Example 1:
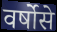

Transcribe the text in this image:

वर्षोसे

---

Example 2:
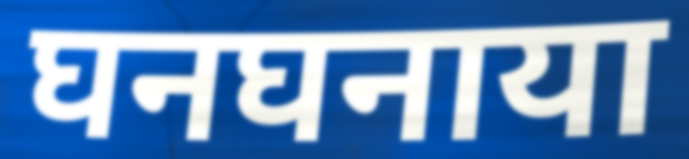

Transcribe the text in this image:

घनघनाया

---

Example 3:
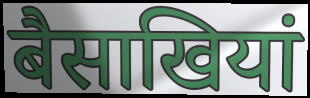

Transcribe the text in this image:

बैसाखियां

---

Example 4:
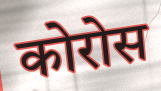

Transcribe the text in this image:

कोरोस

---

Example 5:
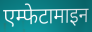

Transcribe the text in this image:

एम्फेटामाइन